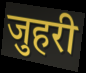
जुहरी